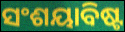
ସଂଶୟାବିଷ୍ଟ